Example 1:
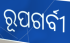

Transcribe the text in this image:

ରୂପଗର୍ବୀ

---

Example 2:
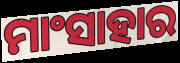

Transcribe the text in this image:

ମାଂସାହାର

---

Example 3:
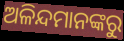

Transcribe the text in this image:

ଅଳିନ୍ଦମାନଙ୍କରୁ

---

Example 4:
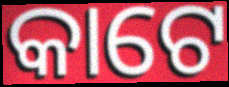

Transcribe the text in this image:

କାଟେ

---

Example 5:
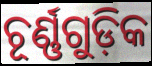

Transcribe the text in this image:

ଚୂର୍ଣ୍ଣଗୁଡ଼ିକ